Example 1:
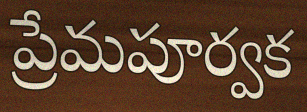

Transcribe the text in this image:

ప్రేమపూర్వక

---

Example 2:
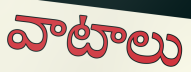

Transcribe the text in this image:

వాటాలు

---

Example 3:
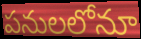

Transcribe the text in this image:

పనులలోనూ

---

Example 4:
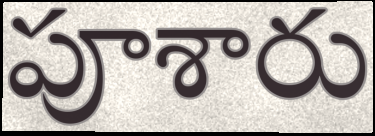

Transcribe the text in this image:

పూశారు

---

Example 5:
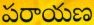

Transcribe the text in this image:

పరాయణ